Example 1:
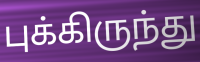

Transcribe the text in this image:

புக்கிருந்து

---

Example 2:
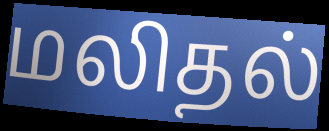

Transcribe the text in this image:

மலிதல்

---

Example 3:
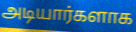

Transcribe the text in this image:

அடியார்களாக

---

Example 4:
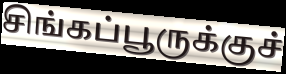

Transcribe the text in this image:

சிங்கப்பூருக்குச்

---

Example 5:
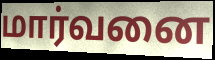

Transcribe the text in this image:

மார்வனை